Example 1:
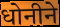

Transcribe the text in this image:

धोनीने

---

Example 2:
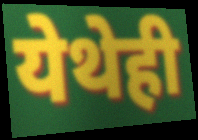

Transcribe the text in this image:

येथेही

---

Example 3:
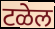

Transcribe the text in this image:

टळेल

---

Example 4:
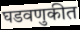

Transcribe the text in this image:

घडवणुकीत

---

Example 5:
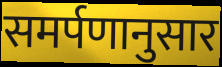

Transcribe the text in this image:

समर्पणानुसार